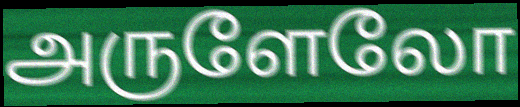
அருளேலோ